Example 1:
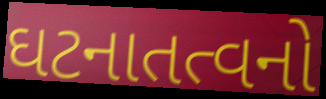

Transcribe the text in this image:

ઘટનાતત્વનો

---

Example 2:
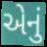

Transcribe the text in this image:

એેનું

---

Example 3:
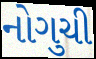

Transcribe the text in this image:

નોગુચી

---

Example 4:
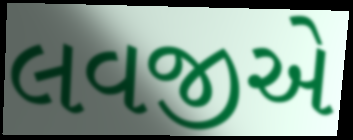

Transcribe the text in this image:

લવજીએ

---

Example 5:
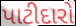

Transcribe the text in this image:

પાટીદારો